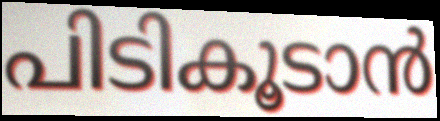
പിടികൂടാൻ